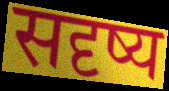
सदृष्य